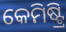
କେମିଷ୍ଟ୍ରି